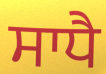
ਸਾਧੈ